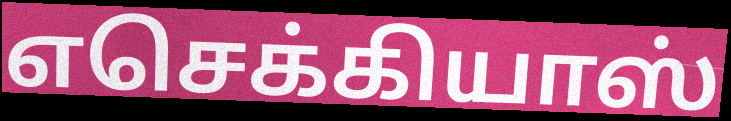
எசெக்கியாஸ்